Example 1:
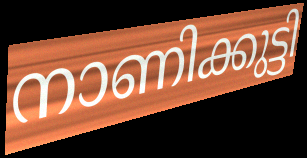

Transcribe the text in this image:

നാണിക്കുട്ടി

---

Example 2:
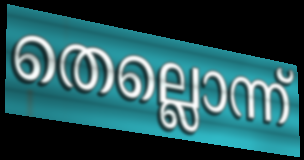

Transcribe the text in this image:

തെല്ലൊന്ന്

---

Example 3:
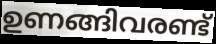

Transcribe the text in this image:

ഉണങ്ങിവരണ്ട്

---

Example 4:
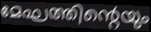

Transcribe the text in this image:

മേഘത്തിന്റെയും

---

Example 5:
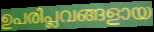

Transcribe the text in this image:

ഉപരിപ്ലവങ്ങളായ